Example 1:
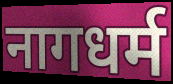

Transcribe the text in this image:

नागधर्म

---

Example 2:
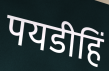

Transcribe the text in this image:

पयडीहिं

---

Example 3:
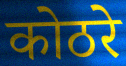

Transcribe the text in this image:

कोठरे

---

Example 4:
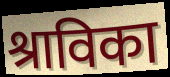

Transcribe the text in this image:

श्राविका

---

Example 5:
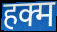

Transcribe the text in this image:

हक्म